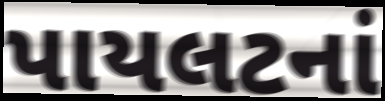
પાયલટનાં